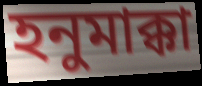
হনুমাক্কা